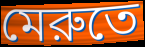
মেরুতে